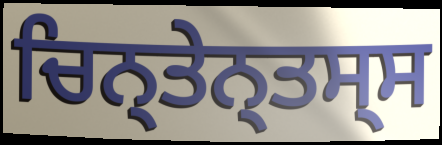
ਚਿਨ੍ਤੇਨ੍ਤਸ੍ਸ